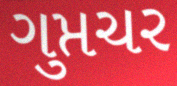
ગુપ્તચર